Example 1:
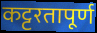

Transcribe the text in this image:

कट्टरतापूर्ण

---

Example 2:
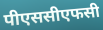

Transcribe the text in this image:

पीएससीएफसी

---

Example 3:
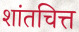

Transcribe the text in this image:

शांतचित्त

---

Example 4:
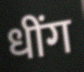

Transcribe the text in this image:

धींग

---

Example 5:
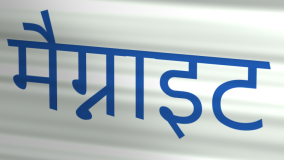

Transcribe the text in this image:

मैग्नाइट